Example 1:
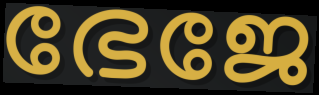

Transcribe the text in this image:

ഭേജേ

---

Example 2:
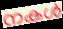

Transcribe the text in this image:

നകൾ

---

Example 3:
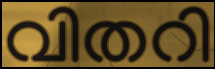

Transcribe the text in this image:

വിതറി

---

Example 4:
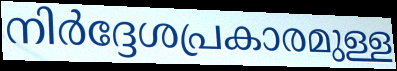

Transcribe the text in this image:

നിർദ്ദേശപ്രകാരമുള്ള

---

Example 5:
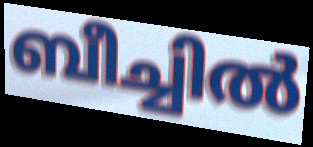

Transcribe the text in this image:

ബീച്ചിൽ